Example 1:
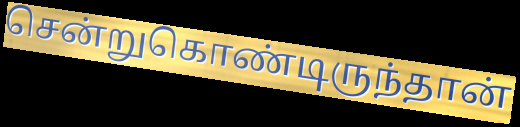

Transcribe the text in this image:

சென்றுகொண்டிருந்தான்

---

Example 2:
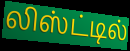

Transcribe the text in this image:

லிஸ்ட்டில்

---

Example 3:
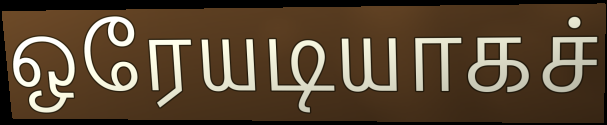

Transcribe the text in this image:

ஒரேயடியாகச்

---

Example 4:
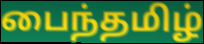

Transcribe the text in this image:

பைந்தமிழ்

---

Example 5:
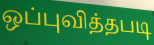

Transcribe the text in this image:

ஒப்புவித்தபடி